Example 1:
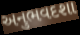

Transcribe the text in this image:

અનુભવદશા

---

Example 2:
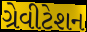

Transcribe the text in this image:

ગ્રેવીટેશન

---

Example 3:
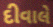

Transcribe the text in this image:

દીવાલે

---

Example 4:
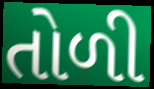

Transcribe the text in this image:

તોળી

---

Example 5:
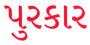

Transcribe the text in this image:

પુરકાર